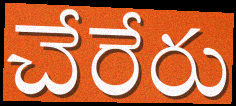
చేరేరు